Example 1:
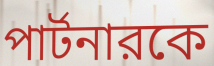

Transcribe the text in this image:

পার্টনারকে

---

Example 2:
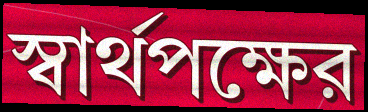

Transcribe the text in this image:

স্বার্থপক্ষের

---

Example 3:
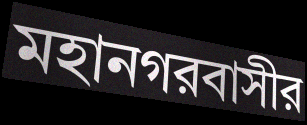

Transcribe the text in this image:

মহানগরবাসীর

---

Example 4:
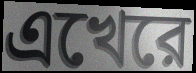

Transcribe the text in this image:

এখেরে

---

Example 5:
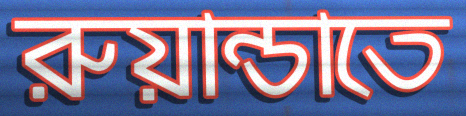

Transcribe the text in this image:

রুয়ান্ডাতে